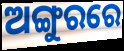
ଅଙ୍ଗୁରରେ